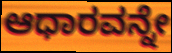
ಆಧಾರವನ್ನೇ